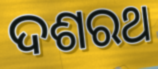
ଦଶରଥ